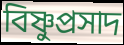
বিষ্ণুপ্ৰসাদ